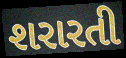
શરારતી